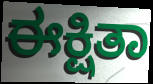
ಈಕ್ಷಿತಾ